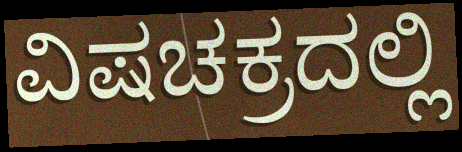
ವಿಷಚಕ್ರದಲ್ಲಿ